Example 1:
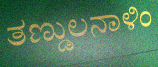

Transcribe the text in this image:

ತಣ್ಡುಲನಾಳಿಂ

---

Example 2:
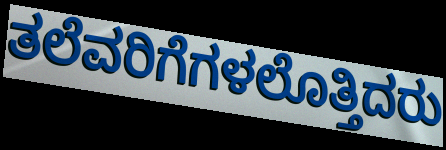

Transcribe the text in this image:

ತಲೆವರಿಗೆಗಳಲೊತ್ತಿದರು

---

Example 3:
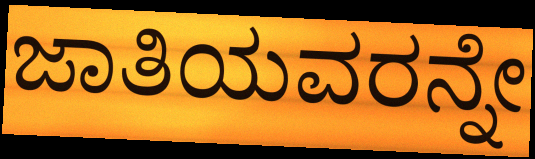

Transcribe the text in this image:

ಜಾತಿಯವರನ್ನೇ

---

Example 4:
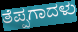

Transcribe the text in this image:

ತೆಪ್ಪಗಾದಳು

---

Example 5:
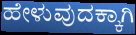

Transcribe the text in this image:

ಹೇಳುವುದಕ್ಕಾಗಿ